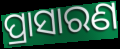
ପ୍ରାସାରଣ